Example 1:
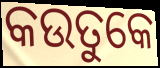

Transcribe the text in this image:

କଉତୁକେ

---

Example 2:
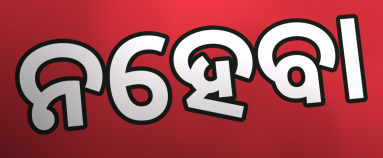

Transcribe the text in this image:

ନହେବା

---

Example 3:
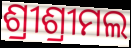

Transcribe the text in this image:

ଶ୍ରୀଶ୍ରୀମଲ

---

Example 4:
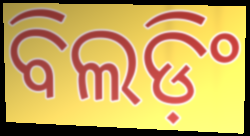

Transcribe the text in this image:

ବିଲଡ଼ିଂ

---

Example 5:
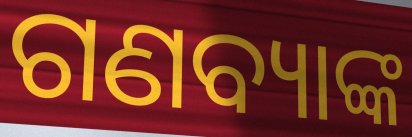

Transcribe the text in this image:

ଗଣବ୍ୟାଙ୍କ